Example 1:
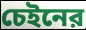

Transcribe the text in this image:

চেইনের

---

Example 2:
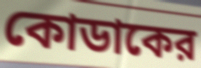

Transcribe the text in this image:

কোডাকের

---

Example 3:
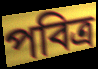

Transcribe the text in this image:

পবিত্র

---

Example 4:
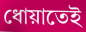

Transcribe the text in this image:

ধোয়াতেই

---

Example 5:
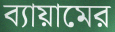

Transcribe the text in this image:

ব্যায়ামের